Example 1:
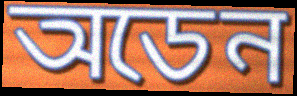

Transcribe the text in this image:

অডেন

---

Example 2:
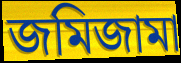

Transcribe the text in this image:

জমিজামা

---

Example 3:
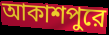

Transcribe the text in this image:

আকাশপুরে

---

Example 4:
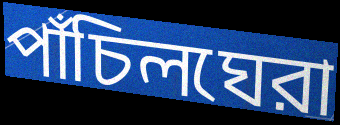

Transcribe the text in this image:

পাঁচিলঘেরা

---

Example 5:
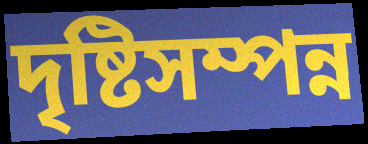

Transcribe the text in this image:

দৃষ্টিসম্পন্ন